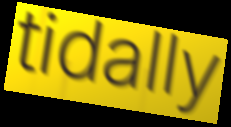
tidally